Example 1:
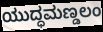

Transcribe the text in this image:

ಯುದ್ಧಮಣ್ಡಲಂ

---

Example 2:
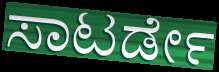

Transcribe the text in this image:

ಸಾಟರ್ಡೇ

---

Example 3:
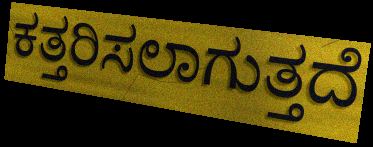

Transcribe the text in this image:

ಕತ್ತರಿಸಲಾಗುತ್ತದೆ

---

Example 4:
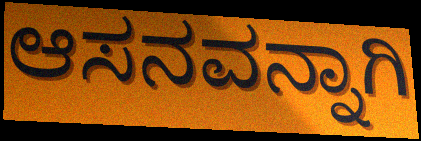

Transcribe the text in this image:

ಆಸನವನ್ನಾಗಿ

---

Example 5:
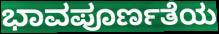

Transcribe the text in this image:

ಭಾವಪೂರ್ಣತೆಯ